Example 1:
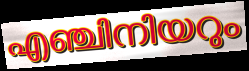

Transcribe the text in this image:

എഞ്ചിനിയറും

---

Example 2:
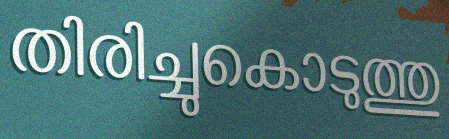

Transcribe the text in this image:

തിരിച്ചുകൊടുത്തു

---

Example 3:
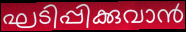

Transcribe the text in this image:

ഘടിപ്പിക്കുവാൻ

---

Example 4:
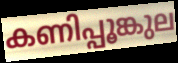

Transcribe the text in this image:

കണിപ്പൂങ്കുല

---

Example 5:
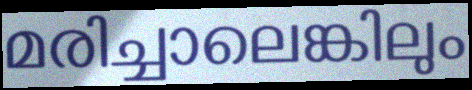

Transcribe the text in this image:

മരിച്ചാലെങ്കിലും